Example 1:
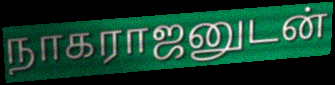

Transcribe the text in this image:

நாகராஜனுடன்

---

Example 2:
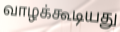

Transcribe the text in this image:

வாழக்கூடியது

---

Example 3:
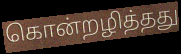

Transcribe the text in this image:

கொன்றழித்தது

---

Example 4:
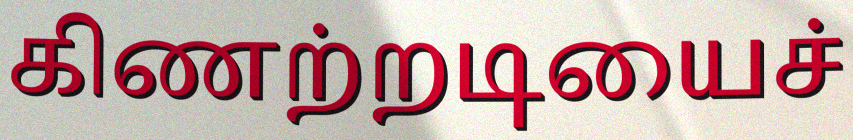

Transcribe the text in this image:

கிணற்றடியைச்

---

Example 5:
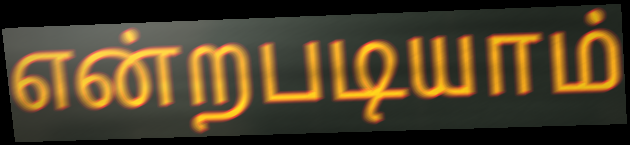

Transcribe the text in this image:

என்றபடியாம்